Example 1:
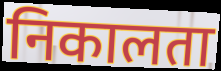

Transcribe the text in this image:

निकालता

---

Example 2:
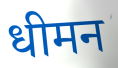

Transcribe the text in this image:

धीमन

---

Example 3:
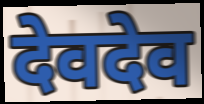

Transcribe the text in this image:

देवदेव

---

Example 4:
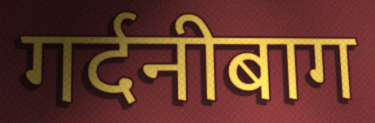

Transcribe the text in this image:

गर्दनीबाग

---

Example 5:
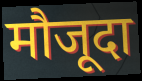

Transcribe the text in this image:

मौजूदा